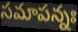
సమాపన్నః